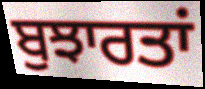
ਬੁਝਾਰਤਾਂ